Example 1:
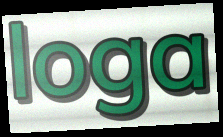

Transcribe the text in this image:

loga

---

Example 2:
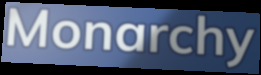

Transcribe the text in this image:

Monarchy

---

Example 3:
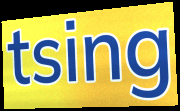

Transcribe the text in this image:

tsing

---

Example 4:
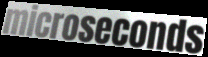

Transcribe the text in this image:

microseconds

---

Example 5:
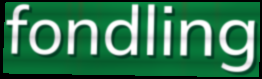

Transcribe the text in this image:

fondling